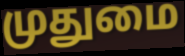
முதுமை